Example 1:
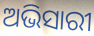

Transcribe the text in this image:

ଅଭିସାରୀ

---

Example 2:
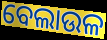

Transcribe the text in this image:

ବେଲାଉଳ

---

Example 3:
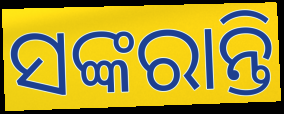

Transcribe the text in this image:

ସଙ୍କରାନ୍ତି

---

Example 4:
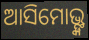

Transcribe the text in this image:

ଆସିମୋଭ୍ଙ୍କ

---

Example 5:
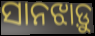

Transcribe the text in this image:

ସାନଝାଡ଼ୁ